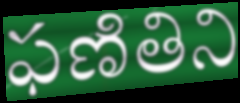
ఫణితిని